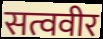
सत्ववीर